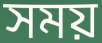
সময়